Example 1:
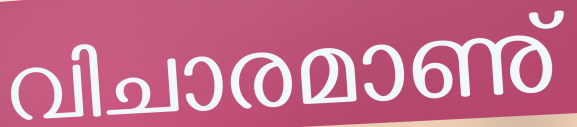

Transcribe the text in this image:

വിചാരമാണു്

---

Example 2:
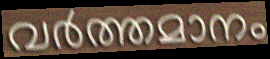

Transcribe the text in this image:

വർത്തമാനം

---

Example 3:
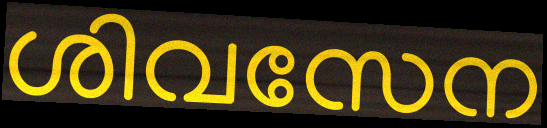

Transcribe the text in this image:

ശിവസേന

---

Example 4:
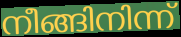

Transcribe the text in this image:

നീങ്ങിനിന്ന്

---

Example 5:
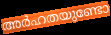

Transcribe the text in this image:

അർഹതയുണ്ടോ